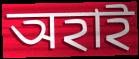
অহাই